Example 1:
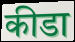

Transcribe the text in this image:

कीडा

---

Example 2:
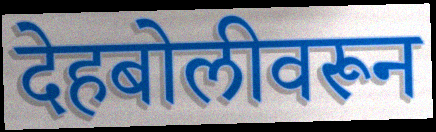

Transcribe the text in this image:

देहबोलीवरून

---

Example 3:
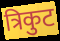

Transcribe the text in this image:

त्रिकुट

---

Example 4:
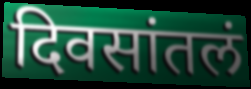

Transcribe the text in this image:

दिवसांतलं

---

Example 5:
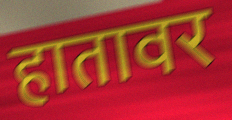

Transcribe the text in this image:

हातावर